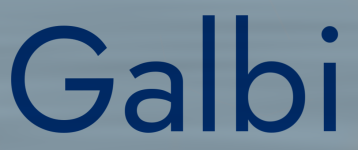
Galbi